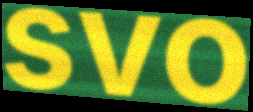
svo